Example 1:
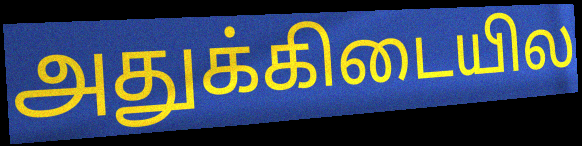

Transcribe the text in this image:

அதுக்கிடையில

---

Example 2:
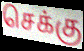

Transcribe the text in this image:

செக்கு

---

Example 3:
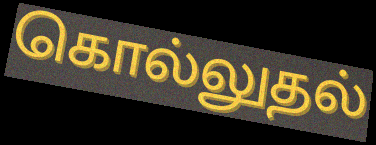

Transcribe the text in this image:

கொல்லுதல்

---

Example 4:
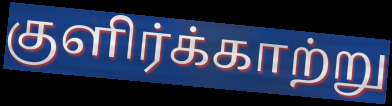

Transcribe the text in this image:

குளிர்க்காற்று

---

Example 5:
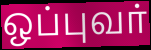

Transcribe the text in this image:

ஒப்புவர்